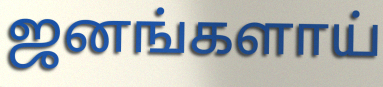
ஜனங்களாய்